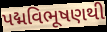
પદ્મવિભૂષણથી